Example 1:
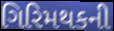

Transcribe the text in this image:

ગિરિમથકની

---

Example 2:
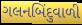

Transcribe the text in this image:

ગલનબિંદુવાળી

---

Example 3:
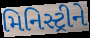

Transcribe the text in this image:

મિનિસ્ટ્રીને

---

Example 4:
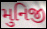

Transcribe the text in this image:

મુનિજી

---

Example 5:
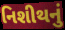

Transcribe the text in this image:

નિશીથનું